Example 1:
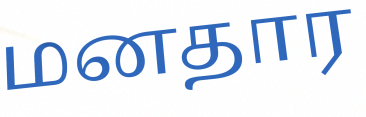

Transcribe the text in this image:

மனதார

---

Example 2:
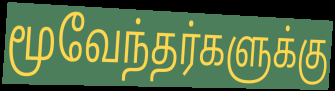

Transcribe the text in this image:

மூவேந்தர்களுக்கு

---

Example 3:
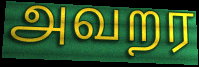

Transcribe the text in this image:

அவறர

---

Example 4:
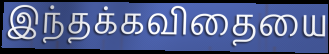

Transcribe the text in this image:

இந்தக்கவிதையை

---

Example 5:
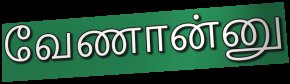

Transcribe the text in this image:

வேணான்னு